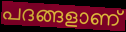
പദങ്ങളാണ്